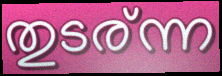
തുടര്ന്ന